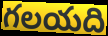
గలయది